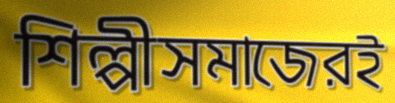
শিল্পীসমাজেরই